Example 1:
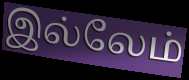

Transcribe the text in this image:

இல்லேம்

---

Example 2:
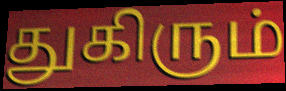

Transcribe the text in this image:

துகிரும்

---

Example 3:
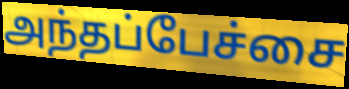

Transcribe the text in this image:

அந்தப்பேச்சை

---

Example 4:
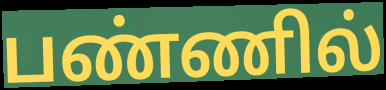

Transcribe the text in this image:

பண்ணில்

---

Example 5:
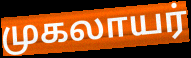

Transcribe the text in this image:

முகலாயர்